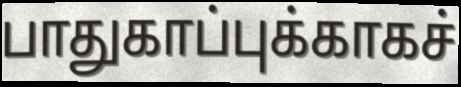
பாதுகாப்புக்காகச்